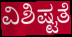
ವಿಶಿಷ್ಟತೆ